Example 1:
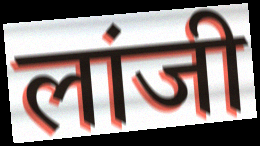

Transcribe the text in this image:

लांजी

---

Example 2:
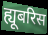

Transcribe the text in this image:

ह्यूबरिस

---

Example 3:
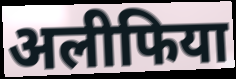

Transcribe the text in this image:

अलीफिया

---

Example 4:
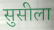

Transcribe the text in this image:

सुसीला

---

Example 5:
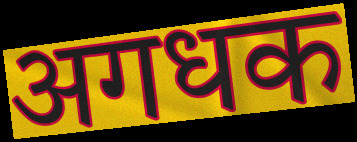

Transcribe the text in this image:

अगधक